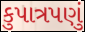
કુપાત્રપણું